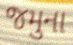
જમુના